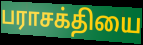
பராசக்தியை